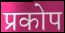
प्रकोप